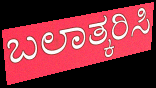
ಬಲಾತ್ಕರಿಸಿ